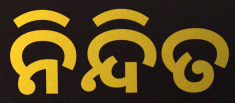
ନିନ୍ଦିତ